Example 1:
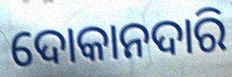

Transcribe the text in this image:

ଦୋକାନଦାରି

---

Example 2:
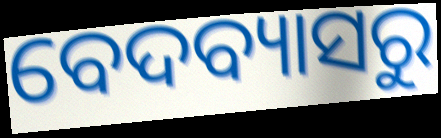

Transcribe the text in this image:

ବେଦବ୍ୟାସରୁ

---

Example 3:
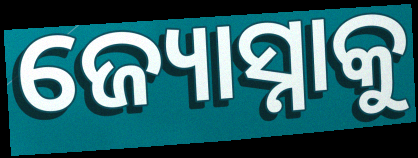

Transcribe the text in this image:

ଜ୍ୟୋସ୍ନାକୁ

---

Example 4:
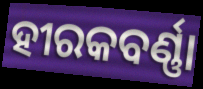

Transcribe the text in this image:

ହୀରକବର୍ଣ୍ଣା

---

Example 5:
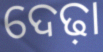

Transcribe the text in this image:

ଦେଢ଼ା